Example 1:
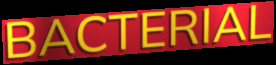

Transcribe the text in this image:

BACTERIAL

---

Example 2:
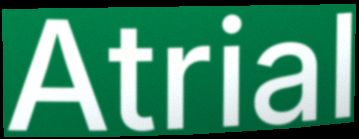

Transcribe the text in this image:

Atrial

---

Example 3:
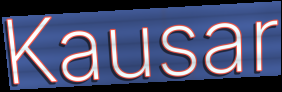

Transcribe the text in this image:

Kausar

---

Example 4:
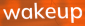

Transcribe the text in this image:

wakeup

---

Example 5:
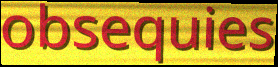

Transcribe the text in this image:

obsequies